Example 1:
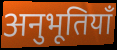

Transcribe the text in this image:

अनुभूतियाँ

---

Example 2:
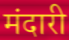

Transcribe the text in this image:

मंदारी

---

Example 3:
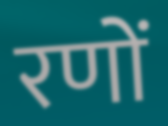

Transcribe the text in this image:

रणों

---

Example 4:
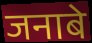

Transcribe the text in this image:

जनाबे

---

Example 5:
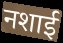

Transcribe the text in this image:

नशाई